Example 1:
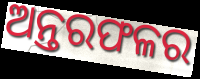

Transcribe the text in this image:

ଅନ୍ତରଫଳର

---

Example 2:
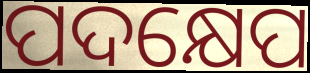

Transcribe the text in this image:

ପଦକ୍ଷେପ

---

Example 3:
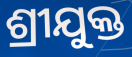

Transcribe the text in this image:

ଶ୍ରୀଯୁକ୍ତ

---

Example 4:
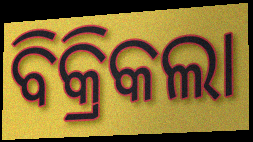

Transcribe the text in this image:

ବିକ୍ରିକଲା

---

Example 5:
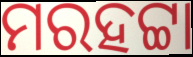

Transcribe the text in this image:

ମରହଟ୍ଟା